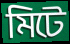
মিটে